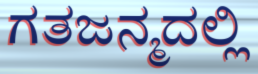
ಗತಜನ್ಮದಲ್ಲಿ